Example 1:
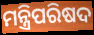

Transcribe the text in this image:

ମନ୍ତ୍ରିପରିଷଦ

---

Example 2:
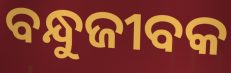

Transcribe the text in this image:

ବନ୍ଧୁଜୀବକ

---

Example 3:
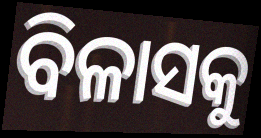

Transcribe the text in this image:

ବିଳାସକୁ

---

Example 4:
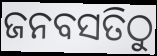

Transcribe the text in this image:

ଜନବସତିଠୁ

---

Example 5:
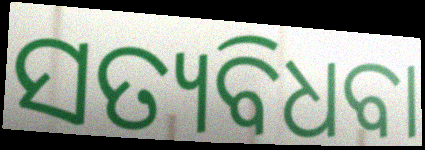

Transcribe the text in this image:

ସତ୍ୟବିଧବା